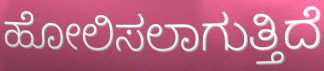
ಹೋಲಿಸಲಾಗುತ್ತಿದೆ